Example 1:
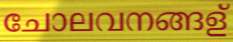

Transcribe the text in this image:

ചോലവനങ്ങള്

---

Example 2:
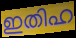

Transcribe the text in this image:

ഇതിഹ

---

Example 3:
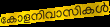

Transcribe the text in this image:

കോളനിവാസികൾ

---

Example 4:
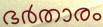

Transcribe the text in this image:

ഭർതാരം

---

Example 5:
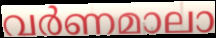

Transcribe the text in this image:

വർണമാലാ